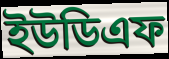
ইউডিএফ